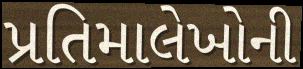
પ્રતિમાલેખોની